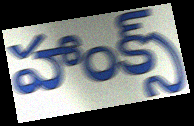
హాంక్స్